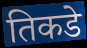
तिकडे